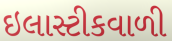
ઇલાસ્ટીકવાળી